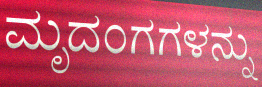
ಮೃದಂಗಗಳನ್ನು